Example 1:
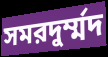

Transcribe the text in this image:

সমরদুর্ম্মদ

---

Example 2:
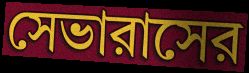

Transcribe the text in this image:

সেভারাসের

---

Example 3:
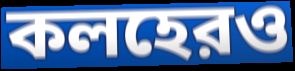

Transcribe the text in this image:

কলহেরও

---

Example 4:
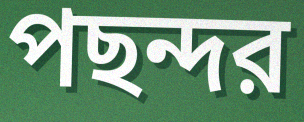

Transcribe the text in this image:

পছন্দর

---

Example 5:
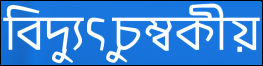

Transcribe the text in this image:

বিদ্যুৎচুম্বকীয়